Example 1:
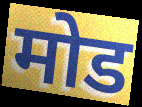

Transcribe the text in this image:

मोड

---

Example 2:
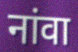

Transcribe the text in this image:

नांवा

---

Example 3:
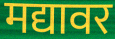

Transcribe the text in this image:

मद्यावर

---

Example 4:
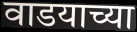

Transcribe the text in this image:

वाडयाच्या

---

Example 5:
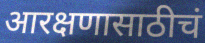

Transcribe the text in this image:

आरक्षणासाठीचं